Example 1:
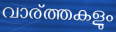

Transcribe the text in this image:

വാര്ത്തകളും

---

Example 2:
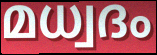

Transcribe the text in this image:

മധ്വദം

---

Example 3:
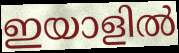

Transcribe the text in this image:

ഇയാളിൽ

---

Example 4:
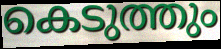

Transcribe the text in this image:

കെടുത്തും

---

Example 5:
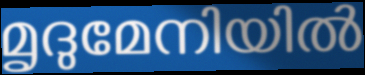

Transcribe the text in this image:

മൃദുമേനിയിൽ